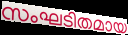
സംഘടിതമായ